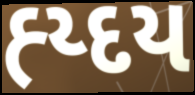
હ્ય્દય